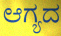
ಆಗ್ಯದ